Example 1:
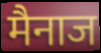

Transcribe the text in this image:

मैनाज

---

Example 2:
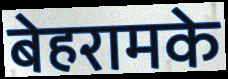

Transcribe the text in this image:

बेहरामके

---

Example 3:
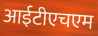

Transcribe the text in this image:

आईटीएचएम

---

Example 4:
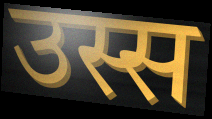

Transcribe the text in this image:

उस्स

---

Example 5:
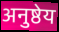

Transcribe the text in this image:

अनुष्ठेय